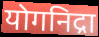
योगनिद्रा